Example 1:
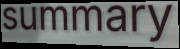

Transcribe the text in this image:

summary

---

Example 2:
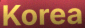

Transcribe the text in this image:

Korea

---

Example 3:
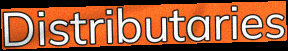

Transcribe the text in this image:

Distributaries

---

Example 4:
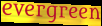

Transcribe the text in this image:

evergreen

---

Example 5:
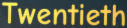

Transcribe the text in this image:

Twentieth